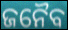
ଜନୈବ